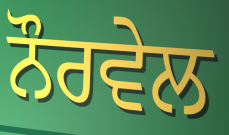
ਨੌਰਵੇਲ